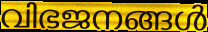
വിഭജനങ്ങൾ